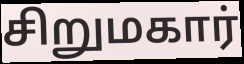
சிறுமகார்